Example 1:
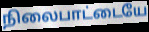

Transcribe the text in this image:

நிலைபாட்டையே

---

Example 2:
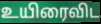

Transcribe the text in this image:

உயிரைவிட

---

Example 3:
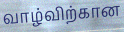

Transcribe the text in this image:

வாழ்விற்கான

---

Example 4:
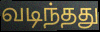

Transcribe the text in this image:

வடிந்தது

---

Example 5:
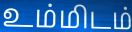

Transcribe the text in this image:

உம்மிடம்